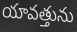
యావత్తును